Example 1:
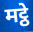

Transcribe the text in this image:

मट्ठे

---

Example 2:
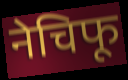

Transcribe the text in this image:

नेचिफू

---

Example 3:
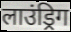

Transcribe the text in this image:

लाउंड्रिग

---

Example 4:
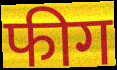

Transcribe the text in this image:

फीग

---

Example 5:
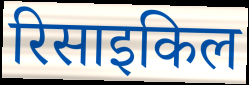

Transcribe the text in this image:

रिसाइकिल